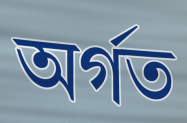
অৰ্গত